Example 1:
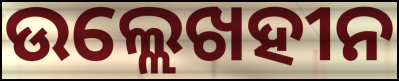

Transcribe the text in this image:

ଉଲ୍ଲେଖହୀନ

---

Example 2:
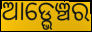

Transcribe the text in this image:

ଆଡ୍ଭେଞ୍ଚର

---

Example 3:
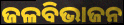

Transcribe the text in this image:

ଜଳବିଭାଜନ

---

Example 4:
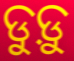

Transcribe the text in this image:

ଡୁଡ଼ୁ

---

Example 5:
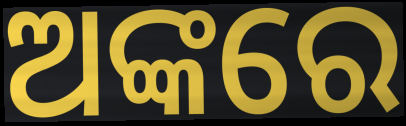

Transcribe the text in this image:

ଅଙ୍କରେ